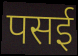
पसई